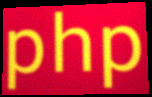
php